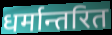
धर्मान्तरित